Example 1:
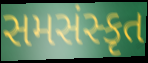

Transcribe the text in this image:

સમસંસ્કૃત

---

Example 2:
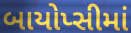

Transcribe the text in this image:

બાયોપ્સીમાં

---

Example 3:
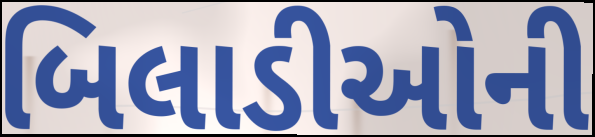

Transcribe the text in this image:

બિલાડીઓની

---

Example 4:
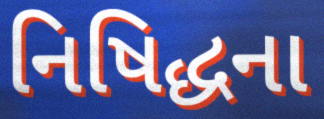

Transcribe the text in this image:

નિષિદ્ધના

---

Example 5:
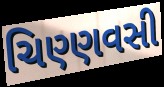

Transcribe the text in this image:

ચિણ્ણવસી